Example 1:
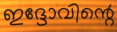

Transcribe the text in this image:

ഇദ്ദോവിന്റെ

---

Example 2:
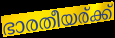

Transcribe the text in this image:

ഭാരതീയര്ക്ക്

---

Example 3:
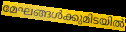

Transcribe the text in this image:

മേഘങ്ങൾക്കുമിടയിൽ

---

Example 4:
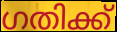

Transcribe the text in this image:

ഗതിക്ക്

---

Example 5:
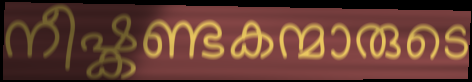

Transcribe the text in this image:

നീഷ്കണ്ടകന്മാരുടെ